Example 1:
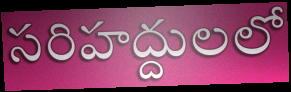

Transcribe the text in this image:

సరిహద్దులలో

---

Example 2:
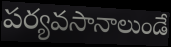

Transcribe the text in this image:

పర్యవసానాలుండే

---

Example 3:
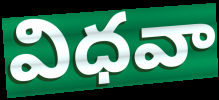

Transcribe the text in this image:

విధవా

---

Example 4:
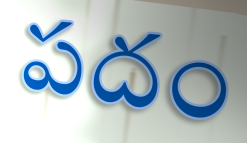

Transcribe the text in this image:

పదం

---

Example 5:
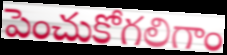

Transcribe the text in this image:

పెంచుకోగలిగాం